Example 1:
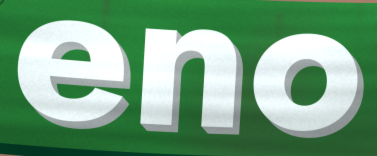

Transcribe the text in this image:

eno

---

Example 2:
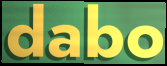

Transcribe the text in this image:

dabo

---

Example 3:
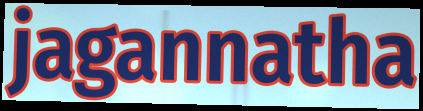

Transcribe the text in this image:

jagannatha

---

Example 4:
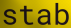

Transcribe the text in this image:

stab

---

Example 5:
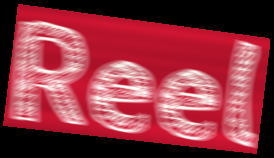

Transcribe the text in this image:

Reel